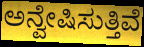
ಅನ್ವೇಷಿಸುತ್ತಿವೆ